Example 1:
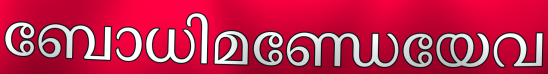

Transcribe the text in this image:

ബോധിമണ്ഡേയേവ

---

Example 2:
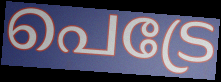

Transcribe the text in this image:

പെട്രേ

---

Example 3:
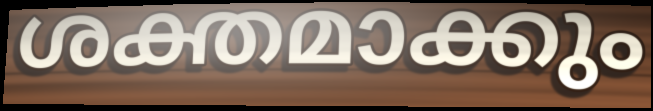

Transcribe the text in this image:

ശക്തമാക്കും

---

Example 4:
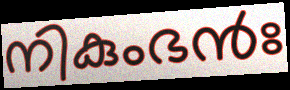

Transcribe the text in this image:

നികുംഭൻഃ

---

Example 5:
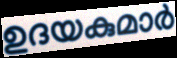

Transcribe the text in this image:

ഉദയകുമാർ